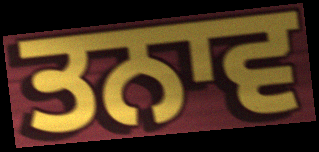
ਤਨਾਵ